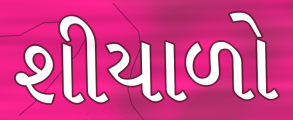
શીયાળો